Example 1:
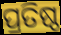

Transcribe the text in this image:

ପ୍ରତିଷ୍ଠ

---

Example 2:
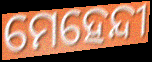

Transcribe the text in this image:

ମେହେନ୍ଦୀ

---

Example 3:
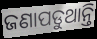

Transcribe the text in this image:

ଜଣାପଡୁଥାନ୍ତି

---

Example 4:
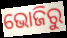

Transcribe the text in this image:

ଭୋଜିରୁ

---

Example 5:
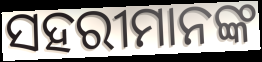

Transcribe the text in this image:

ସହରୀମାନଙ୍କ